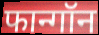
फान्गॉन